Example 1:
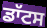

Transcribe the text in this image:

ਡਾੱਟਸ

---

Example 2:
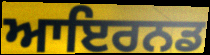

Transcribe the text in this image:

ਆਇਰਨਡ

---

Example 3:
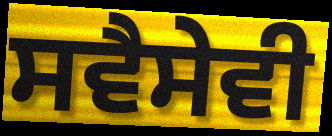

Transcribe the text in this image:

ਸਵੈਸੇਵੀ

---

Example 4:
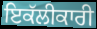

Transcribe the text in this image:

ਇਕੱਲੀਕਾਰੀ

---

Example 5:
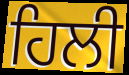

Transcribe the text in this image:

ਹਿਲੀ